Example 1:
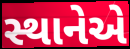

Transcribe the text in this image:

સ્થાનેએ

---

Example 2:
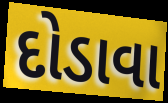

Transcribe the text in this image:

દોડાવા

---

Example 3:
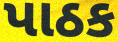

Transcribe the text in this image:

પાઠક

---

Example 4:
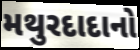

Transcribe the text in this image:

મથુરદાદાનો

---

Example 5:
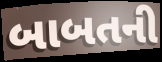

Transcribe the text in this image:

બાબતની